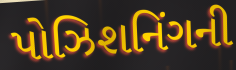
પોઝિશનિંગની